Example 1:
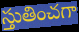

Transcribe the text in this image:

స్తుతించగా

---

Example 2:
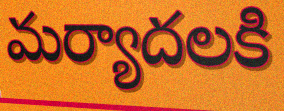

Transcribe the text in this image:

మర్యాదలకి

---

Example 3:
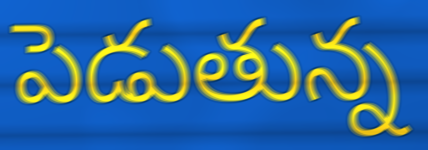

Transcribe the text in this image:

పెడుతున్న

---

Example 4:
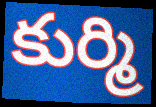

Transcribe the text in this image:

కుర్మి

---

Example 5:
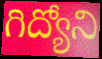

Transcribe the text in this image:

గిద్యోని